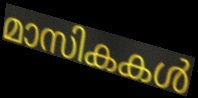
മാസികകൾ